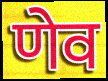
णेव